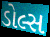
ડોલ્સ